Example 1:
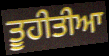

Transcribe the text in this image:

ਤੂਹੀਤੀਆ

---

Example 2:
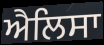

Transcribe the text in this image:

ਐਲਿਸਾ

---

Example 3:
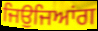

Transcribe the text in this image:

ਜਿਉਜਿਆਂਗ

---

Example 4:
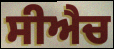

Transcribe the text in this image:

ਸੀਐਚ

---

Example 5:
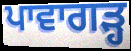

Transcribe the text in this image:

ਪਾਵਾਗੜ੍ਹ